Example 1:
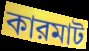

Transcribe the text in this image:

কারমাট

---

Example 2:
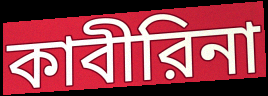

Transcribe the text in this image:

কাবীরিনা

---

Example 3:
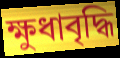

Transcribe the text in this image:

ক্ষুধাবৃদ্ধি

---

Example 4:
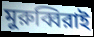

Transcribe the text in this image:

মুরুব্বিরাই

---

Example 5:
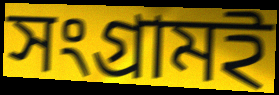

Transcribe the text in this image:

সংগ্রামই